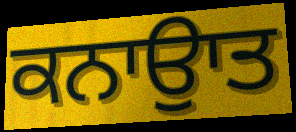
ਕਨਾਉਾਤ